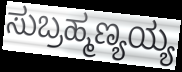
ಸುಬ್ರಹ್ಮಣ್ಯಯ್ಯ